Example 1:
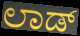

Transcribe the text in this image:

ಲಾಡ್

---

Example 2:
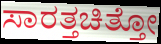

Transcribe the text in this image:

ಸಾರತ್ತಚಿತ್ತೋ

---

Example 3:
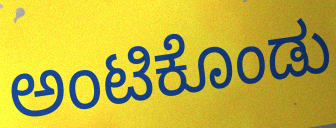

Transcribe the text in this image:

ಅಂಟಿಕೊಂಡು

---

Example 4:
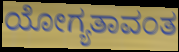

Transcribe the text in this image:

ಯೋಗ್ಯತಾವಂತ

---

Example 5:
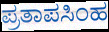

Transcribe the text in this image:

ಪ್ರತಾಪಸಿಂಹ